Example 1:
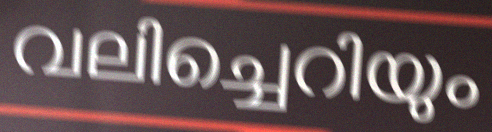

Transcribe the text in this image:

വലിച്ചെറിയും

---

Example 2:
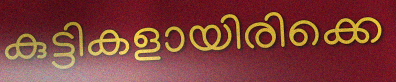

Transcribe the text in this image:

കുട്ടികളായിരിക്കെ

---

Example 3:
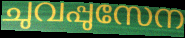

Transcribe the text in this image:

ചുവപ്പുസേന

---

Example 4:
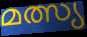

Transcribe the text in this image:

മത്സ്യ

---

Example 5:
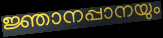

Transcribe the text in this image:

ജ്ഞാനപ്പാനയും